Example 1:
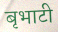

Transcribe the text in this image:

बृभाटी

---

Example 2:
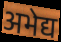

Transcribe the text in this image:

अभेद्य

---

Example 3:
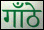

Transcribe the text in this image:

गाँठे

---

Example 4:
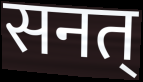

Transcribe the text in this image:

सनत्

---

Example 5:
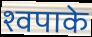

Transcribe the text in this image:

श्वपाके